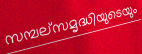
സമ്പല്സമൃദ്ധിയുടെയും